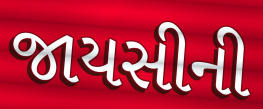
જાયસીની